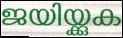
ജയിയ്ക്കുക